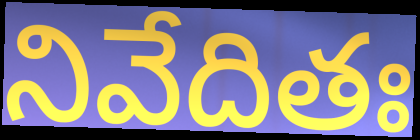
నివేదితః